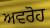
ਅਵਰੋਹ